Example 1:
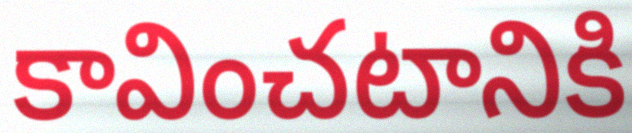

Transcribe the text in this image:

కావించటానికి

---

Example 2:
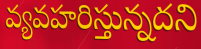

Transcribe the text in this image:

వ్యవహరిస్తున్నదని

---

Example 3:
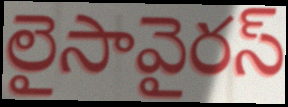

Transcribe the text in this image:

లైసావైరస్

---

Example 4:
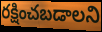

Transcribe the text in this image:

రక్షించబడాలని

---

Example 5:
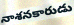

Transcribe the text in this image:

నాశనకారుడు